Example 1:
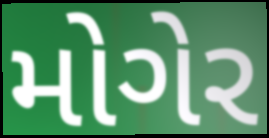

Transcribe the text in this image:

મોગેર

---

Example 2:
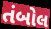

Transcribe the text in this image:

તંબોલ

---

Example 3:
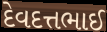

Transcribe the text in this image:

દેવદત્તભાઈ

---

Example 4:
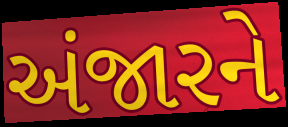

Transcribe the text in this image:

અંજારને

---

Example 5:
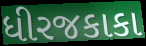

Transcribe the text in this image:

ધીરજકાકા